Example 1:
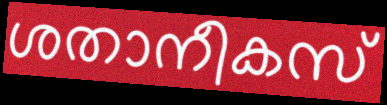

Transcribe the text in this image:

ശതാനീകസ്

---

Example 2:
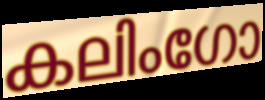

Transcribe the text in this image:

കലിംഗോ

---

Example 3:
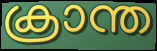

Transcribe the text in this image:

ക്രാന്ത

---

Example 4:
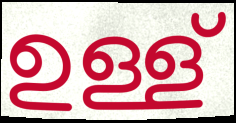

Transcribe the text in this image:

ഉള്ള്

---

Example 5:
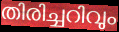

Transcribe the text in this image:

തിരിച്ചറിവും